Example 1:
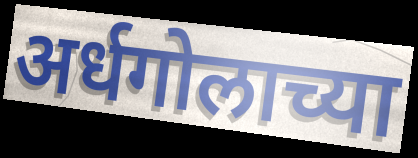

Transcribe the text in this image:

अर्धगोलाच्या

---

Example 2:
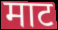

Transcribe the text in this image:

माट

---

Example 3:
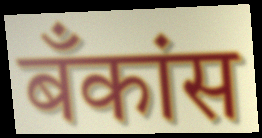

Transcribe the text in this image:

बँकांस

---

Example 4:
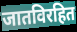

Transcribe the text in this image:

जातविरहित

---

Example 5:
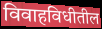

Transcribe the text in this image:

विवाहविधीतील